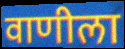
वाणीला